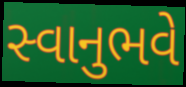
સ્વાનુભવે